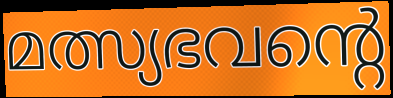
മത്സ്യഭവന്റെ